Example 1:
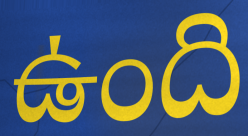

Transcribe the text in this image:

ఉంది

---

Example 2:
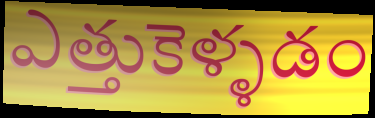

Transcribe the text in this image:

ఎత్తుకెళ్ళడం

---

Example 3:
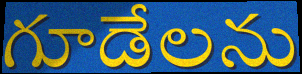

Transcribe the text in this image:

గూడేలను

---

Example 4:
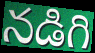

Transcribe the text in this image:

నడిగి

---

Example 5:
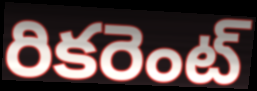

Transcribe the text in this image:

రికరెంట్